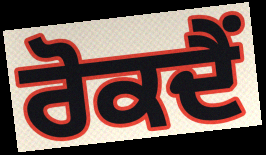
ਰੋਕਦੈਂ